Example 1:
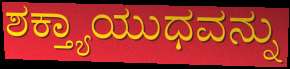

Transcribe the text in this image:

ಶಕ್ತ್ಯಾಯುಧವನ್ನು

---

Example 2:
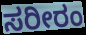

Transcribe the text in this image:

ಸರೀರಂ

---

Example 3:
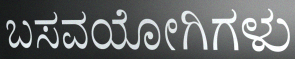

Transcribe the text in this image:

ಬಸವಯೋಗಿಗಳು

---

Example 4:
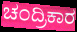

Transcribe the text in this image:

ಚಂದ್ರಿಕಾರ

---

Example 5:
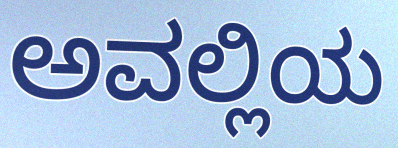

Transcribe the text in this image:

ಅವಲ್ಲಿಯ